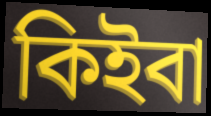
কিইবা